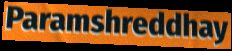
Paramshreddhay